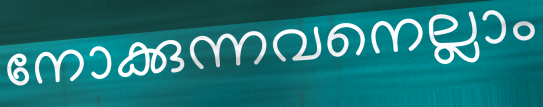
നോക്കുന്നവനെല്ലാം